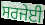
ਸਰਜੇਈ